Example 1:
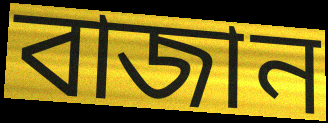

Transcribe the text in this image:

বাজান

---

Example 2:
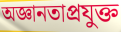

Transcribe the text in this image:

অজ্ঞানতাপ্রযুক্ত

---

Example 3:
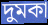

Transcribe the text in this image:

দুমকা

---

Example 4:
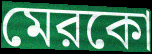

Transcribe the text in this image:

মেরকো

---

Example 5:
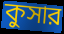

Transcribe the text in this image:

কুসার